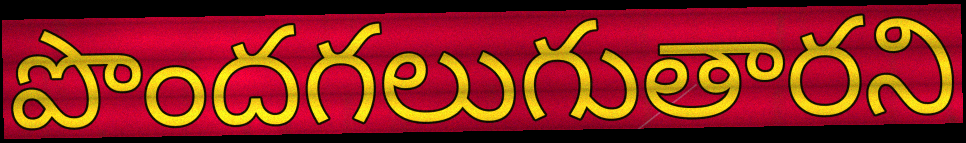
పొందగలుగుతారని